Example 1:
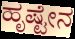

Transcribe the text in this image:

ಹೃಷ್ಟೇನ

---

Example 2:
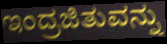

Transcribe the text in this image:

ಇಂದ್ರಜಿತುವನ್ನು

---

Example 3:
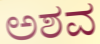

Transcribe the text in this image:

ಅಶವ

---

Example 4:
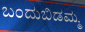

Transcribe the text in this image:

ಬಂದುಬಿಡಮ್ಮ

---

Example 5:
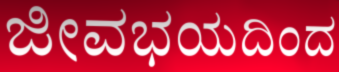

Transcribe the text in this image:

ಜೀವಭಯದಿಂದ